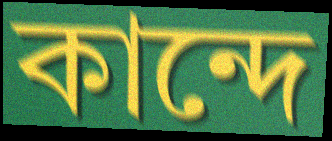
কান্দে